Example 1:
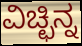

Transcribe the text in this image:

ವಿಚ್ಛಿನ್ನ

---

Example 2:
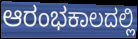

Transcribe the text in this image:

ಆರಂಭಕಾಲದಲ್ಲಿ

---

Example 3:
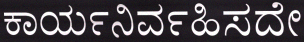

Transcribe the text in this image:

ಕಾರ್ಯನಿರ್ವಹಿಸದೇ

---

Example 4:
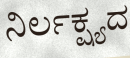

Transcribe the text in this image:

ನಿರ್ಲಕ್ಷ್ಯದ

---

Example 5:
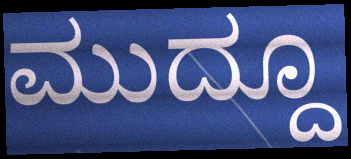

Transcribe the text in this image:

ಮುದ್ದೂ